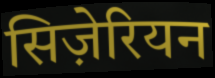
सिज़ेरियन